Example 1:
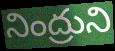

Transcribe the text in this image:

నింద్రుని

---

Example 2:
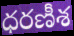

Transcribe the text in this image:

ధరణీశ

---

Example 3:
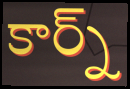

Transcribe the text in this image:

కార్న్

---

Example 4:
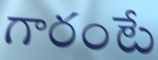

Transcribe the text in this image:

గారంటే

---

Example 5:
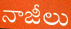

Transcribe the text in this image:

నాజీలు